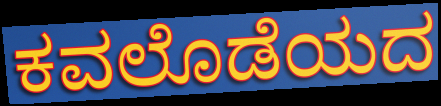
ಕವಲೊಡೆಯದ